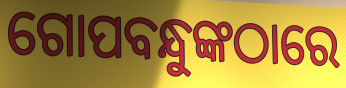
ଗୋପବନ୍ଧୁଙ୍କଠାରେ